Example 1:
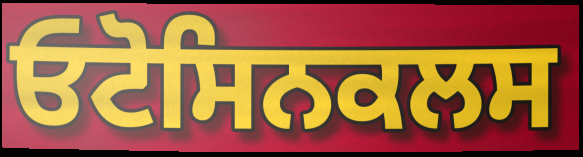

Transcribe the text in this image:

ਓਟੋਸਿਨਕਲਸ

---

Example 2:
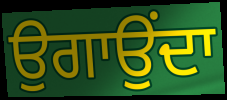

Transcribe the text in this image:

ਉਗਾਉਂਦਾ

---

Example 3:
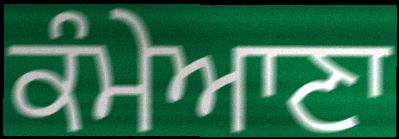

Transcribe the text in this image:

ਕੰਮੇਆਣਾ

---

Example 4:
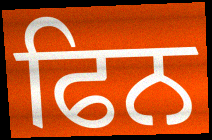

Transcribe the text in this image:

ਫਿਨ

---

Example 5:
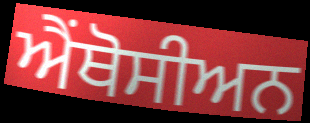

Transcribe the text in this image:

ਐਂਥੋਸੀਅਨ